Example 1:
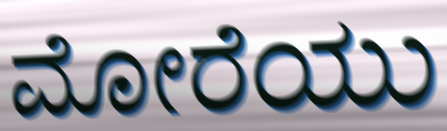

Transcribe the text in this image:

ಮೋರೆಯು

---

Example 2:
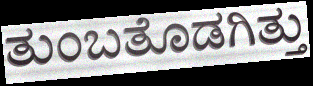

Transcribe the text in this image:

ತುಂಬತೊಡಗಿತ್ತು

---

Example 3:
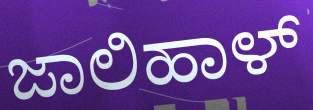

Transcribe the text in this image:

ಜಾಲಿಹಾಳ್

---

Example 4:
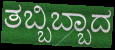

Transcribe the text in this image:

ತಬ್ಬಿಬ್ಬಾದ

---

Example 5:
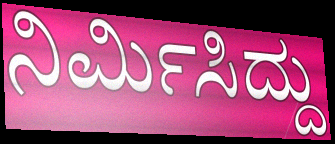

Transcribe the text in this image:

ನಿರ್ಮಿಸಿದ್ದು